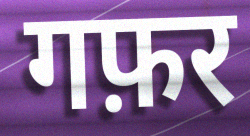
गफ़र